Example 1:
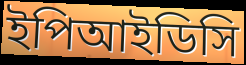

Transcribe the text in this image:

ইপিআইডিসি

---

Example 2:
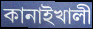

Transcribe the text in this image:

কানাইখালী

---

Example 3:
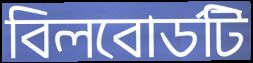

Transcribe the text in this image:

বিলবোর্ডটি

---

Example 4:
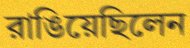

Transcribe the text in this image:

রাঙিয়েছিলেন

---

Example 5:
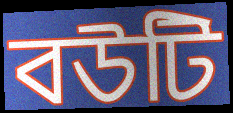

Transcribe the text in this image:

বউটি